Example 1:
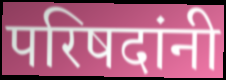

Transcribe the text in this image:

परिषदांनी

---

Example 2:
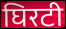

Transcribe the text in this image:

घिरटी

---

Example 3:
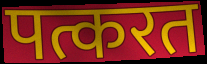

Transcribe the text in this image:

पत्करत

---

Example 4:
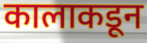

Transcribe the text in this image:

कालाकडून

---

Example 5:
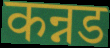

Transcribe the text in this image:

कन्नड